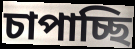
চাপাচ্ছি